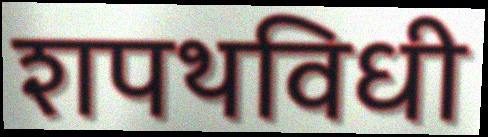
शपथविधी